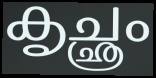
കൃച്ഛ്രം